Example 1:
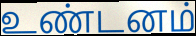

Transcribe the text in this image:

உண்டனம்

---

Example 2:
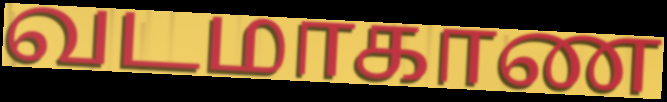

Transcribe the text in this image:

வடமாகாண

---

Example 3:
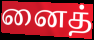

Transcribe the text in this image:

னைத்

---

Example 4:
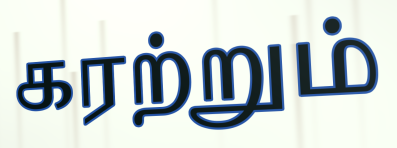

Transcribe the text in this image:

கரற்றும்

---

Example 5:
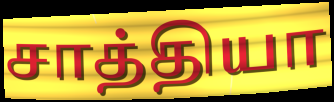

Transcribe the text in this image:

சாத்தியா